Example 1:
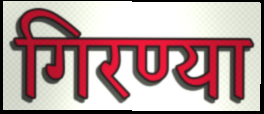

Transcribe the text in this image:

गिरण्या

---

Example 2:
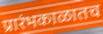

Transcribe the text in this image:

प्रारंभकाळातच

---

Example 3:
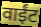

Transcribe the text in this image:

वाईंट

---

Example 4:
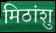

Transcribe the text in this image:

मिठांशु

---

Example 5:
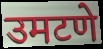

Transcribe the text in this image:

उमटणे